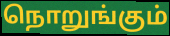
நொறுங்கும்